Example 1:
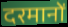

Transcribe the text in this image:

दरमानों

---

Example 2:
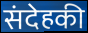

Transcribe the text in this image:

संदेहकी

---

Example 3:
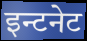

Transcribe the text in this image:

इन्टनेट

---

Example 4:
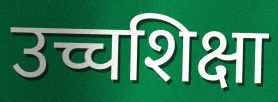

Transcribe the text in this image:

उच्चशिक्षा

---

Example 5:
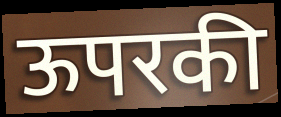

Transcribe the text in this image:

ऊपरकी